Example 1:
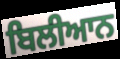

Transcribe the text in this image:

ਬਿਲੀਆਨ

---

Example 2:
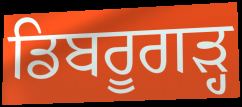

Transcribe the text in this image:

ਡਿਬਰੂਗੜ੍ਹ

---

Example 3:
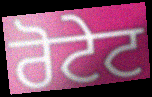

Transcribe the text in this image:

ਰੋਟੇਟ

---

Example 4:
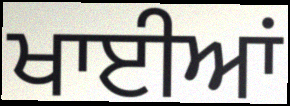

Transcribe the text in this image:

ਖਾਈਆਂ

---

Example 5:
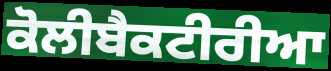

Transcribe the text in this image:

ਕੋਲੀਬੈਕਟੀਰੀਆ